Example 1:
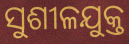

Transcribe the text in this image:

ସୁଶୀଳଯୁକ୍ତ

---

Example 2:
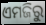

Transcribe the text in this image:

ଏମଜିରୁ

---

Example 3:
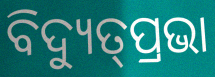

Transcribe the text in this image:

ବିଦ୍ୟୁତ୍‌ପ୍ରଭା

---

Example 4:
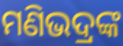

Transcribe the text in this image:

ମଣିଭଦ୍ରଙ୍କ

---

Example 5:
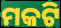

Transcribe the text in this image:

ମକଟି